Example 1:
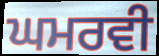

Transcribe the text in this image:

ਘਮਰਵੀ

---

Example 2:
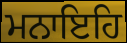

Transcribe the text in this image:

ਮਨਾਇਹਿ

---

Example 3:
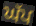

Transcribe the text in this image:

ਘੱਪ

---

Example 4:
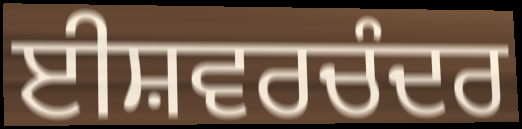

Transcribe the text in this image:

ਈਸ਼ਵਰਚੰਦਰ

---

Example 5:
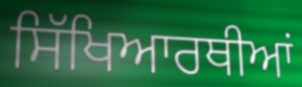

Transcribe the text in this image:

ਸਿੱਖਿਆਰਥੀਆਂ